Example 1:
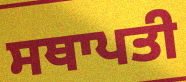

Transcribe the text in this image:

ਸਥਾਪਤੀ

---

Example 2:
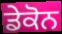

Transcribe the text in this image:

ਡੇਕੋਨ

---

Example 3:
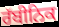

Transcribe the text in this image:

ਰੱਬੀਨਿਕ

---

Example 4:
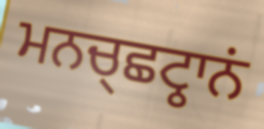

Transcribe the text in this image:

ਮਨਚ੍ਛਟ੍ਠਾਨਂ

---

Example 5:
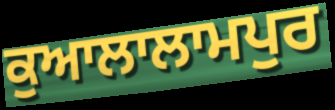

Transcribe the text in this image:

ਕੁਆਲਾਲਾਮਪੁਰ